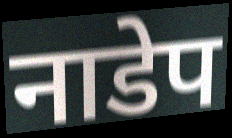
नाडेप